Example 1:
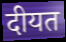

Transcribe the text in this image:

दीयत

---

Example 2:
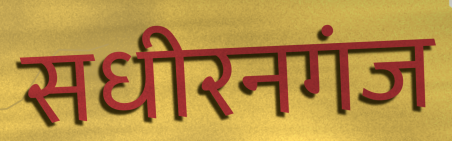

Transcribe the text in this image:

सधीरनगंज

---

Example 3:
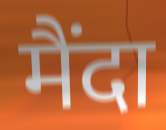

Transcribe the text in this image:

मैंदा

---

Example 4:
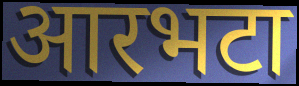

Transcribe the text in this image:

आरभटा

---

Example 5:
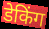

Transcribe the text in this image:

डेकिंग